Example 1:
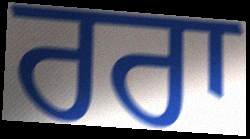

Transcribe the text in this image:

ਰਰਾ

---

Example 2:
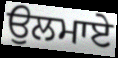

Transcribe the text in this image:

ਉਲਮਾਏ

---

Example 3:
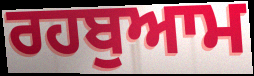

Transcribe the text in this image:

ਰਹਬੁਆਮ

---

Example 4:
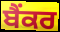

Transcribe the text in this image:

ਬੈਂਕਰ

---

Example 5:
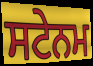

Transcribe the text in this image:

ਸਟੇਨਮ